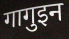
गागुइन